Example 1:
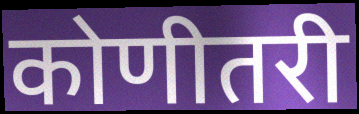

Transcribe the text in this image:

कोणीतरी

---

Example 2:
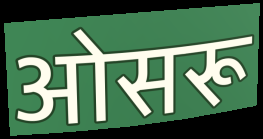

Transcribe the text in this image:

ओसरू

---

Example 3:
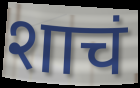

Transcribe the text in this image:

शाचं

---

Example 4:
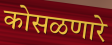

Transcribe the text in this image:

कोसळणारे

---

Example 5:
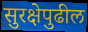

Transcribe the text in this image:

सुरक्षेपुढील